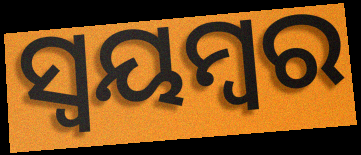
ସ୍ଵୟମ୍ବର